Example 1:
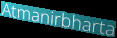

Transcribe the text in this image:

Atmanirbharta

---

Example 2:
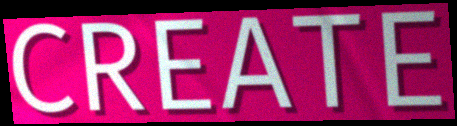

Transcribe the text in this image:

CREATE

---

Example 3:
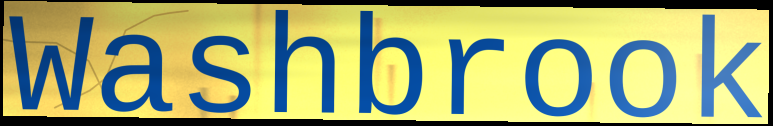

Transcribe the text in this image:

Washbrook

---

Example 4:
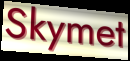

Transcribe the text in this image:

Skymet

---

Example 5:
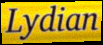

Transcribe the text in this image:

Lydian